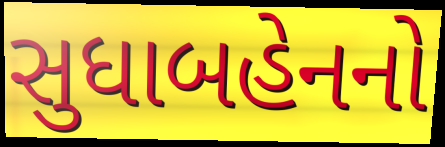
સુધાબહેનનો